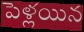
పెళ్లయిన